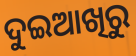
ଦୁଇଆଖିରୁ